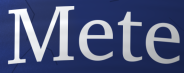
Mete